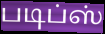
படிப்ஸ்